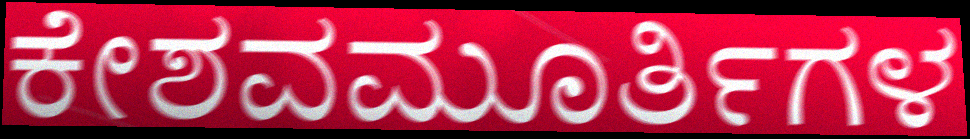
ಕೇಶವಮೂರ್ತಿಗಳ